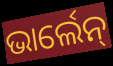
ଭାର୍ଲେନ୍